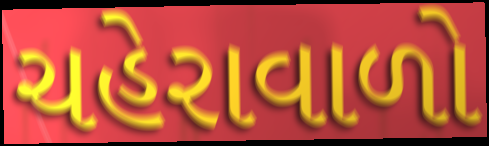
ચહેરાવાળો